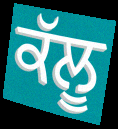
ਕੱਲੂ